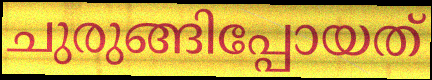
ചുരുങ്ങിപ്പോയത്